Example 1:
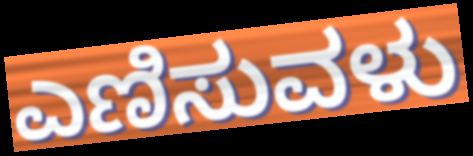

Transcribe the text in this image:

ಎಣಿಸುವಳು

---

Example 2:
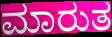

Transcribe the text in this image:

ಮಾರುತ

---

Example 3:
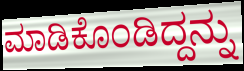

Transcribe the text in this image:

ಮಾಡಿಕೊಂಡಿದ್ದನ್ನು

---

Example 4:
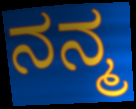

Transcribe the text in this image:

ನನ್ಮ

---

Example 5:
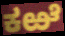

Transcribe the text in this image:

ಕಱೆ